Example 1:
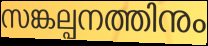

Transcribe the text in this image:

സങ്കല്പനത്തിനും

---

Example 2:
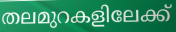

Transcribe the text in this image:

തലമുറകളിലേക്ക്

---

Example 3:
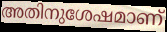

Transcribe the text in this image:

അതിനുശേഷമാണ്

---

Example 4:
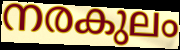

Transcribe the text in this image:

നരകുലം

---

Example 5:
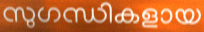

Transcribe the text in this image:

സുഗന്ധികളായ